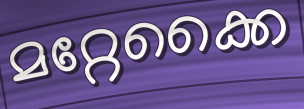
മറ്റേക്കൈ